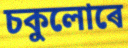
চকুলোৰে